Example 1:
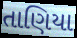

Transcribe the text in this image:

તાણિયા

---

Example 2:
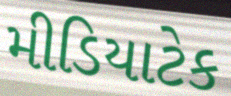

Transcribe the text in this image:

મીડિયાટેક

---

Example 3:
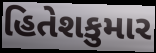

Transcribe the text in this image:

હિતેશકુમાર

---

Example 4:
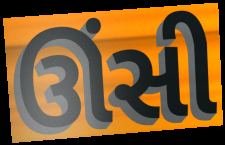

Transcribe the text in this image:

ઊંસી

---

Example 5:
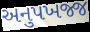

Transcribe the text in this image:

અનુપખજ્જ